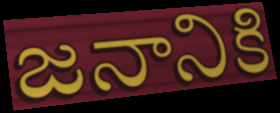
జనానికి